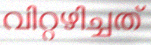
വിറ്റഴിച്ചത്